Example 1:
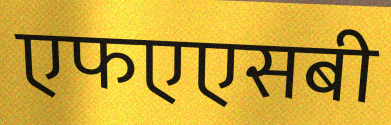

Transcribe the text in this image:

एफएएसबी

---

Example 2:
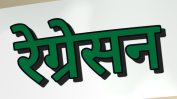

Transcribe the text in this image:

रेग्रेसन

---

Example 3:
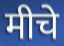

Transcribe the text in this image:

मीचे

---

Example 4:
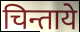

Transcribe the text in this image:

चिन्ताये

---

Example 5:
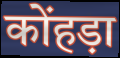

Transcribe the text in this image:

कोंहड़ा